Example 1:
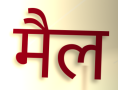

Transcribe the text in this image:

मैल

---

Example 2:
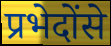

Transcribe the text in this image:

प्रभेदोंसे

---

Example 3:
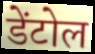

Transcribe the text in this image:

डेंटोल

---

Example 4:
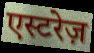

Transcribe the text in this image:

एस्टरेज़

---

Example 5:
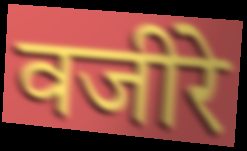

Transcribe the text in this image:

वजीरे